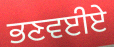
ਭਣਵਈਏ